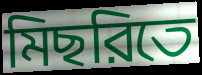
মিছরিতে